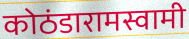
कोठंडारामस्वामी